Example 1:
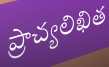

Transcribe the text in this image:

ప్రాచ్యలిఖిత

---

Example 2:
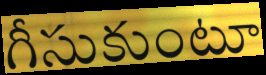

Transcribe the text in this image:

గీసుకుంటూ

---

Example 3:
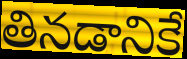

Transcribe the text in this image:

తినడానికే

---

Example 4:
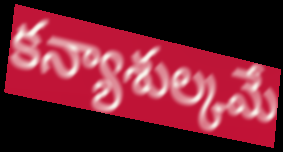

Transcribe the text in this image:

కన్యాశుల్కమే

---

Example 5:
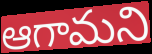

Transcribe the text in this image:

ఆగామని